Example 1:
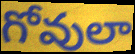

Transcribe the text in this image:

గోవులా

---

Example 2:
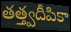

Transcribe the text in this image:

తత్త్వదీపికా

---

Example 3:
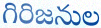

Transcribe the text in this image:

గిరిజనుల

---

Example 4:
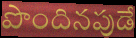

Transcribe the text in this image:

పొందినపుడే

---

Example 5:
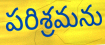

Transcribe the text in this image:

పరిశ్రమను